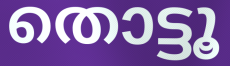
തൊട്ടൂ